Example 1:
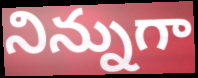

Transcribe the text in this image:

నిన్నుగా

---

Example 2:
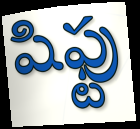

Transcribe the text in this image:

షిఫ్టు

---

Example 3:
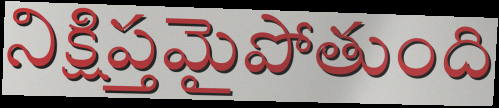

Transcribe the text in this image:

నిక్షిప్తమైపోతుంది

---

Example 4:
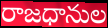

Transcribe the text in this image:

రాజధానుల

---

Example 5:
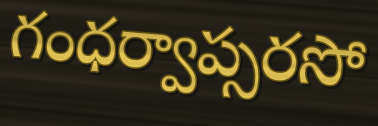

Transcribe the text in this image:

గంధర్వాప్సరసో